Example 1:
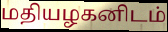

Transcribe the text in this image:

மதியழகனிடம்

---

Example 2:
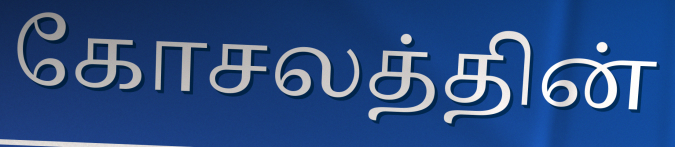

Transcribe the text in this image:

கோசலத்தின்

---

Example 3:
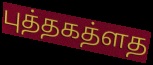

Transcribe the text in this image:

புத்தகத்ளத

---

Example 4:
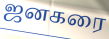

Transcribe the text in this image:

ஜனகரை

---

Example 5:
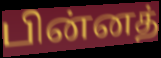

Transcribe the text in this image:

பின்னத்